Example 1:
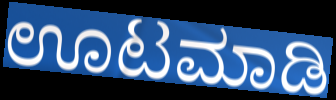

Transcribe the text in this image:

ಊಟಮಾಡಿ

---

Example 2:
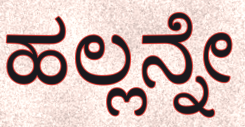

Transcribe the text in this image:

ಹಲ್ಲನ್ನೇ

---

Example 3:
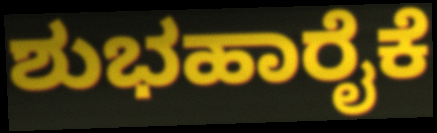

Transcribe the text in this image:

ಶುಭಹಾರೈಕೆ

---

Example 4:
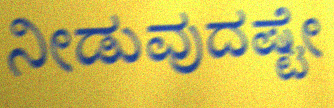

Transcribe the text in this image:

ನೀಡುವುದಷ್ಟೇ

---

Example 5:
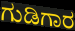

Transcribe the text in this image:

ಗುಡಿಗಾರ